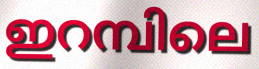
ഇറമ്പിലെ